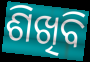
ଶିଖିବି